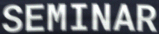
SEMINAR